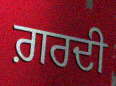
ਗ਼ਰਦੀ